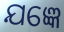
ଯଜ୍ଞେ